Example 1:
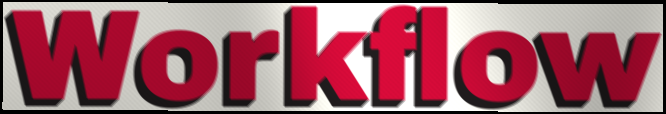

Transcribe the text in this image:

Workflow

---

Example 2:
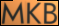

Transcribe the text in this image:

MKB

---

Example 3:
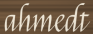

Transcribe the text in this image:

ahmedt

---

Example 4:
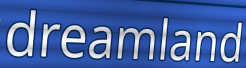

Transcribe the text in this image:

dreamland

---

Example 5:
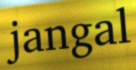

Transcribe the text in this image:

jangal